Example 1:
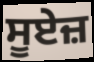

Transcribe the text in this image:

ਸੂਏਜ਼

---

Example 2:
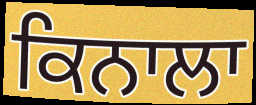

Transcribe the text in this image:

ਕਿਨਾਲਾ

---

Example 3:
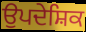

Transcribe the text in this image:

ਉਪਦੇਸ਼ਿਕ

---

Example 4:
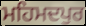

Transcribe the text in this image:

ਮਹਿਮਦਪੁਰ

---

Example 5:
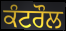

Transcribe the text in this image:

ਕੰਟਰੌਲ